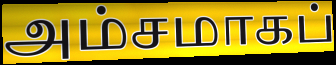
அம்சமாகப்